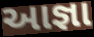
આજ્ઞા